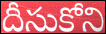
దీసుకోని